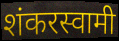
शंकरस्वामी